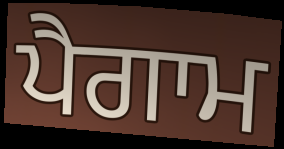
ਪੈਗਾਮ